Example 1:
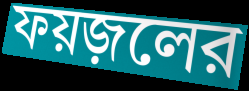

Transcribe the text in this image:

ফয়জ়লের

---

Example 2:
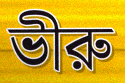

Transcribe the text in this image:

ভীরু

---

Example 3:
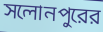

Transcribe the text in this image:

সলোনপুরের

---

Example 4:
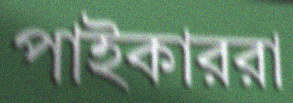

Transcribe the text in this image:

পাইকাররা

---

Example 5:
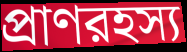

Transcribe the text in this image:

প্রাণরহস্য